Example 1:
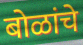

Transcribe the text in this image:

बोळांचे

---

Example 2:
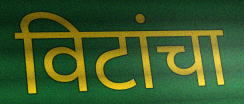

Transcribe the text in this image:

विटांचा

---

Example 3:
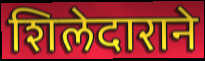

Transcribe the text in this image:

शिलेदाराने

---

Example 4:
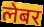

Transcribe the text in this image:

लेबर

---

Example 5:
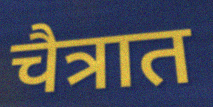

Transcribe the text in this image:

चैत्रात